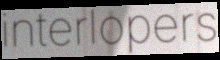
interlopers